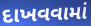
દાખવવામાં